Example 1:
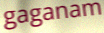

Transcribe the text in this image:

gaganam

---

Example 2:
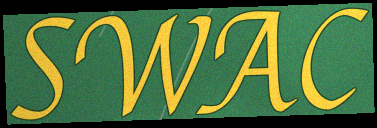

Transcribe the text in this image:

SWAC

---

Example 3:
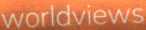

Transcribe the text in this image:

worldviews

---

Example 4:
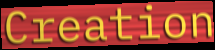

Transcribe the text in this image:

Creation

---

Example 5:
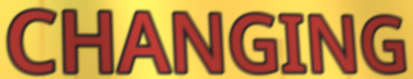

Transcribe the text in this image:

CHANGING